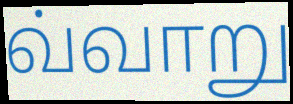
வ்வாறு